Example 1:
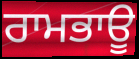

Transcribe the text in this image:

ਰਾਮਭਾਊ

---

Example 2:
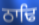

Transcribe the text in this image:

ਠਾਢਿ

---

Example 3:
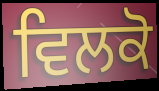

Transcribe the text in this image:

ਵਿਲਕੋ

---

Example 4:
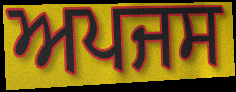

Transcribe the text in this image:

ਅਪਜਸ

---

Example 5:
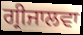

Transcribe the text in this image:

ਗ੍ਰੀਜਾਲਵਾ